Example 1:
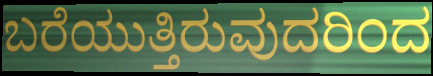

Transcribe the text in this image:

ಬರೆಯುತ್ತಿರುವುದರಿಂದ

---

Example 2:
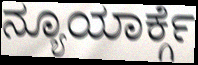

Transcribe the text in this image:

ನ್ಯೂಯಾರ್ಕ್ಗೆ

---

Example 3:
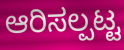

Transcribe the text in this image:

ಆರಿಸಲ್ಪಟ್ಟ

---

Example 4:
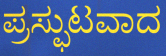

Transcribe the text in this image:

ಪ್ರಸ್ಫುಟವಾದ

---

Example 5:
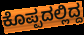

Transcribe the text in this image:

ಕೊಪ್ಪದಲ್ಲಿದ್ದ